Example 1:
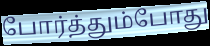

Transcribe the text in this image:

போர்த்தும்போது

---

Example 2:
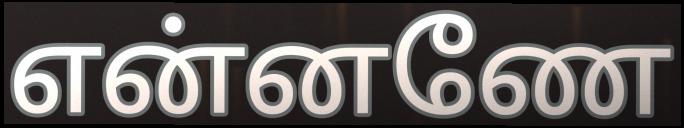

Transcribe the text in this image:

என்னணே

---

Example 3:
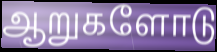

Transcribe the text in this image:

ஆறுகளோடு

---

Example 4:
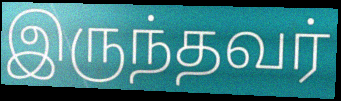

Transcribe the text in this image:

இருந்தவர்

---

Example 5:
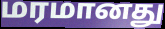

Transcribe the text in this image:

மரமானது